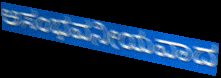
ಅಸಂಭವನೀಯವಾದ